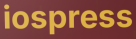
iospress